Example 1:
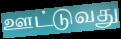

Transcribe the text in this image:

ஊட்டுவது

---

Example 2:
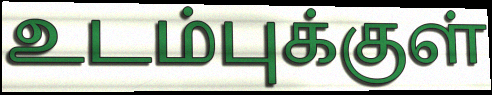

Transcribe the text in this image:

உடம்புக்குள்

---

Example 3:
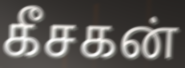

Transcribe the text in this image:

கீசகன்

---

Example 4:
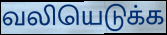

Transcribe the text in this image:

வலியெடுக்க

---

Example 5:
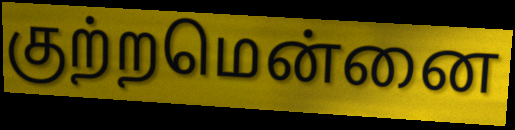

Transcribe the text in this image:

குற்றமென்னை